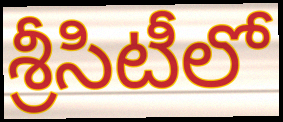
శ్రీసిటీలో